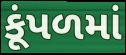
કૂંપળમાં